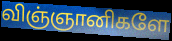
விஞ்ஞானிகளே